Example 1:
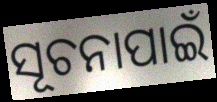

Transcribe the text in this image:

ସୂଚନାପାଇଁ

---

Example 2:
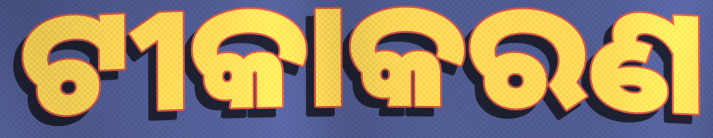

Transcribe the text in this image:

ଟୀକାକରଣ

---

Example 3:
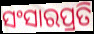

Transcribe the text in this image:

ସଂସାରପ୍ରତି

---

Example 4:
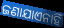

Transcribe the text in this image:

ଜଣାଯାଏନାହିଁ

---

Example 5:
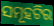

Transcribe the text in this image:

ସମୂହଟିର